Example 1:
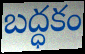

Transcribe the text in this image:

బద్ధకం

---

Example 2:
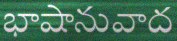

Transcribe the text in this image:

భాషానువాద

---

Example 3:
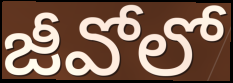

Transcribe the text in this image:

జీవోలో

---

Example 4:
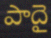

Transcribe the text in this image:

పాదై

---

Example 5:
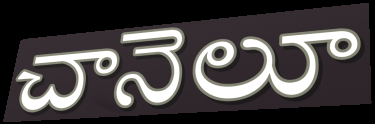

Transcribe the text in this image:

చానెలూ